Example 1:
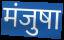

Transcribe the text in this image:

मंजुषा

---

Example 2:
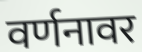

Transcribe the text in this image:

वर्णनावर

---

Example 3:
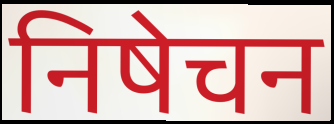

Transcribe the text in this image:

निषेचन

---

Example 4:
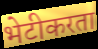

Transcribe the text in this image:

भेटीकरता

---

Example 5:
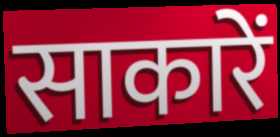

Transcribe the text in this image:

साकारें